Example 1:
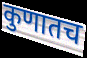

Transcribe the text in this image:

कुणातच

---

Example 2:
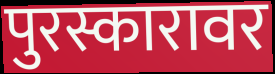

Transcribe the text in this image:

पुरस्कारावर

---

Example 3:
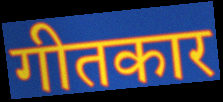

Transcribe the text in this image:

गीतकार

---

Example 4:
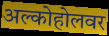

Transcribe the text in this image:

अल्कोहोलवर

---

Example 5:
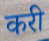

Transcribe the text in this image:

करी